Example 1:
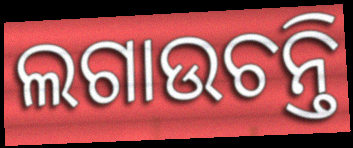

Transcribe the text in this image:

ଲଗାଉଚନ୍ତି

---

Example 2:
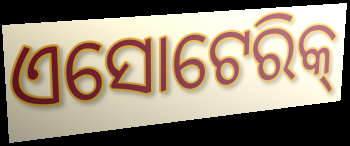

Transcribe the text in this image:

ଏସୋଟେରିକ୍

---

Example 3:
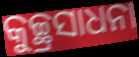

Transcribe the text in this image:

କୁଚ୍ଛ୍ରସାଧନା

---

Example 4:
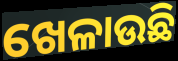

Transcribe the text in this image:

ଖେଳାଉଛି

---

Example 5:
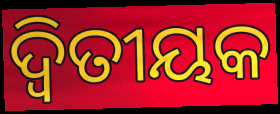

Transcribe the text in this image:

ଦ୍ୱିତୀୟକ